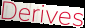
Derives